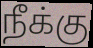
நீக்கு